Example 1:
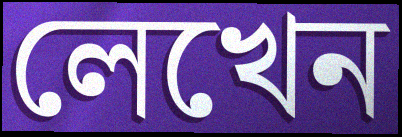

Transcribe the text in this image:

লেখেন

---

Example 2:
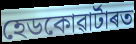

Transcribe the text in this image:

হেডকোৱাৰ্টাৰত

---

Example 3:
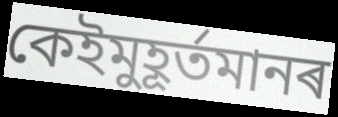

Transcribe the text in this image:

কেইমুহূৰ্তমানৰ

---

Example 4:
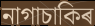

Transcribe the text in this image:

নাগাচাকিৰ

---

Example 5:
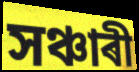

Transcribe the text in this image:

সঞ্চাৰী